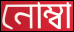
নোম্বা